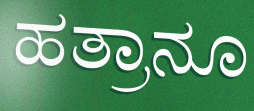
ಹತ್ರಾನೂ